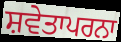
ਸ਼ਵੇਤਾਪਰਨਾ